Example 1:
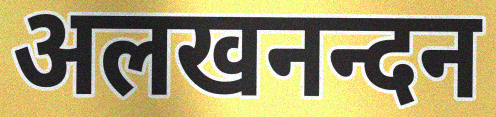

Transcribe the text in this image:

अलखनन्दन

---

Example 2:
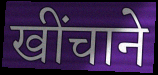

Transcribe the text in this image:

खींचाने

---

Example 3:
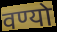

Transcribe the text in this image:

वण्यो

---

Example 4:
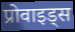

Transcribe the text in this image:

प्रोवाइड्स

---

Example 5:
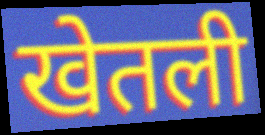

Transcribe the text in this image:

खेतली